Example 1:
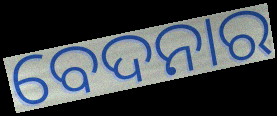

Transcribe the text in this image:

ବେଦନାର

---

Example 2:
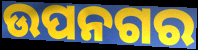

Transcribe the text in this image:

ଉପନଗର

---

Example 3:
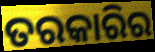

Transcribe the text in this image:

ତରକାରିର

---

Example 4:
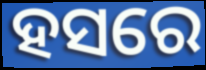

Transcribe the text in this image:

ହସରେ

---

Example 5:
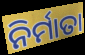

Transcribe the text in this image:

ନିର୍ମାତା